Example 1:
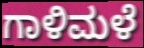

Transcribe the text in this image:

ಗಾಳಿಮಳೆ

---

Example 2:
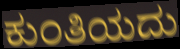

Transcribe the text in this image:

ಕುಂತಿಯದು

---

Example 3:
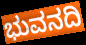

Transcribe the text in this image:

ಭುವನದಿ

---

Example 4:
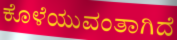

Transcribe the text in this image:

ಕೊಳೆಯುವಂತಾಗಿದೆ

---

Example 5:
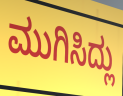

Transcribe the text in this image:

ಮುಗಿಸಿದ್ಲು